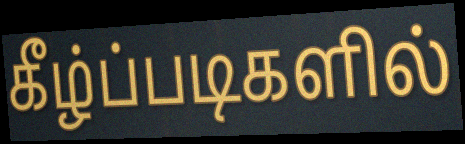
கீழ்ப்படிகளில்